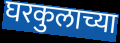
घरकुलाच्या